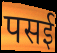
पसई